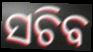
ସଚିବ